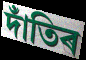
দাঁতিৰ